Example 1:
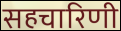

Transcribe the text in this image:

सहचारिणी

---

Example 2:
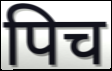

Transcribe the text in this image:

पिच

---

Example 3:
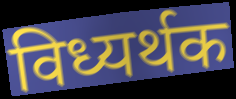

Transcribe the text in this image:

विध्यर्थक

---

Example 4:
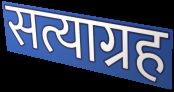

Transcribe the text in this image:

सत्याग्रह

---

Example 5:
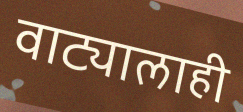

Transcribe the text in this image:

वाट्यालाही